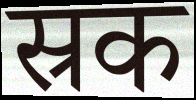
स्रक